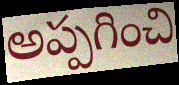
అప్పగించి